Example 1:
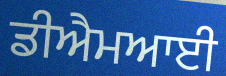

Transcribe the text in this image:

ਡੀਐਮਆਈ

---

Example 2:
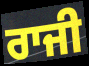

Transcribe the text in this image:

ਰਾਜੀ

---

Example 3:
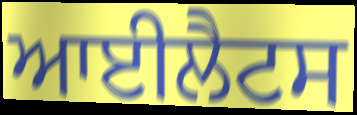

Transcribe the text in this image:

ਆਈਲੈਟਸ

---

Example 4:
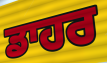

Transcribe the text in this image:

ਡਾਹਰ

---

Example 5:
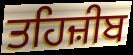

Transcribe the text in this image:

ਤਹਿਜ਼ੀਬ